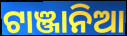
ଟାଞ୍ଜାନିଆ